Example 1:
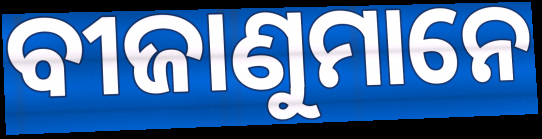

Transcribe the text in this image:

ବୀଜାଣୁମାନେ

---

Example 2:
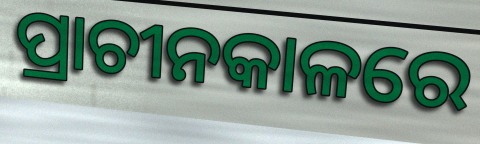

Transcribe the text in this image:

ପ୍ରାଚୀନକାଳରେ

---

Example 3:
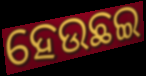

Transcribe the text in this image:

ହେଉଛଇ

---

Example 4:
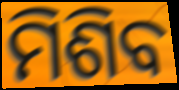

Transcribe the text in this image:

ମିଶିବ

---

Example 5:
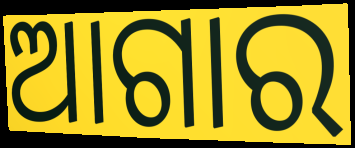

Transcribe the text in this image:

ଆଗାର